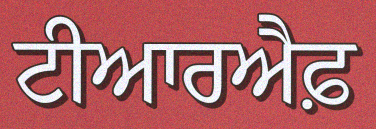
ਟੀਆਰਐਫ਼